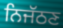
ਨਿਜੱਠਣ